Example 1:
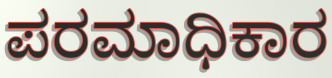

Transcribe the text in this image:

ಪರಮಾಧಿಕಾರ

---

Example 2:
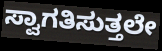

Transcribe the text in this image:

ಸ್ವಾಗತಿಸುತ್ತಲೇ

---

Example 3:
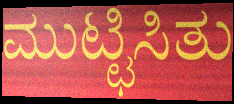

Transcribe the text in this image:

ಮುಟ್ಟಿಸಿತು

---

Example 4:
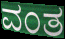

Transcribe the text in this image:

ವಂತ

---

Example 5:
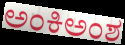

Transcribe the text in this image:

ಅಂಕಿಅಂಶ